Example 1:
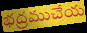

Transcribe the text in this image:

భద్రముచేయ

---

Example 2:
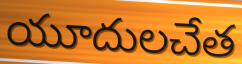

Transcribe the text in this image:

యూదులచేత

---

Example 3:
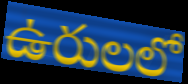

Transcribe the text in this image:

ఉరులలో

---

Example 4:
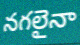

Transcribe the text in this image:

నగలైనా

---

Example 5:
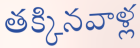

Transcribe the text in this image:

తక్కినవాళ్ల